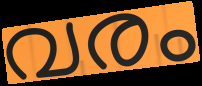
വരം